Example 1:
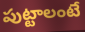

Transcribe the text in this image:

పుట్టాలంటే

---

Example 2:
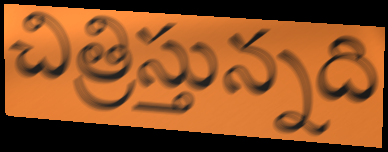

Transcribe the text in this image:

చిత్రిస్తున్నది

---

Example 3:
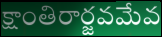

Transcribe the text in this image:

క్షాంతిరార్జవమేవ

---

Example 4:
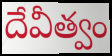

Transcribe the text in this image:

దేవీత్వం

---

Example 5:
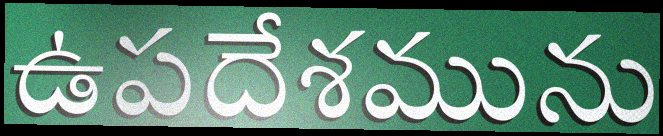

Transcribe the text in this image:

ఉపదేశమును